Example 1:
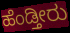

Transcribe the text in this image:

ಹೆಂಡ್ತೀರು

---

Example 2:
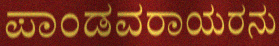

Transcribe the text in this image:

ಪಾಂಡವರಾಯರನು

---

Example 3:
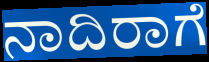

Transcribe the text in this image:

ನಾದಿರಾಗೆ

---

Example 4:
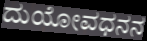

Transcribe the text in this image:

ದುಯೋವಧನನ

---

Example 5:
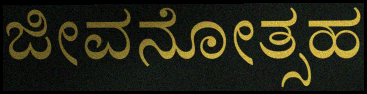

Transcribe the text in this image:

ಜೀವನೋತ್ಸಹ